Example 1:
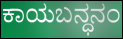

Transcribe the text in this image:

ಕಾಯಬನ್ಧನಂ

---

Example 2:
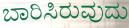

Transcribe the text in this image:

ಬಾರಿಸಿರುವುದು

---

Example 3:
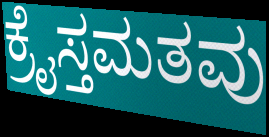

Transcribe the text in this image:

ಕ್ರೈಸ್ತಮತವು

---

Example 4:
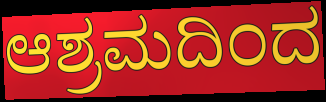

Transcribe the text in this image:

ಆಶ್ರಮದಿಂದ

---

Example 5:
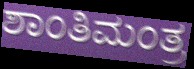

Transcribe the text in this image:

ಶಾಂತಿಮಂತ್ರ